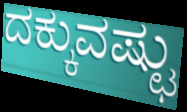
ದಕ್ಕುವಷ್ಟು